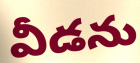
వీడను